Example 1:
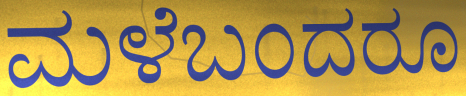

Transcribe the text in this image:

ಮಳೆಬಂದರೂ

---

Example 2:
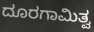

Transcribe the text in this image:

ದೂರಗಾಮಿತ್ವ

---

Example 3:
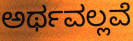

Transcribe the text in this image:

ಅರ್ಥವಲ್ಲವೆ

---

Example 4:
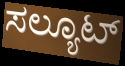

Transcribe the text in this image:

ಸಲ್ಯೂಟ್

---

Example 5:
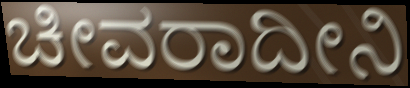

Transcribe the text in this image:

ಚೀವರಾದೀನಿ